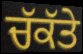
ਚੱਕੱਤੇ